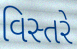
વિસ્તરે